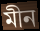
মীন